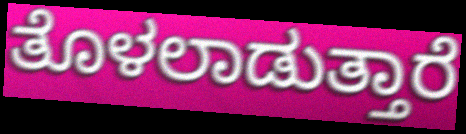
ತೊಳಲಾಡುತ್ತಾರೆ